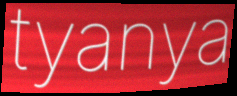
tyanya